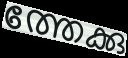
ത്തേക്കു